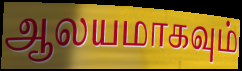
ஆலயமாகவும்